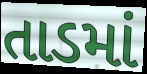
તાડમાં